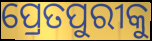
ପ୍ରେତପୁରୀକୁ